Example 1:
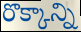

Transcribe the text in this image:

రొక్కాన్ని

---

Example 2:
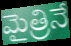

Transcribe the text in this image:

మైత్రినే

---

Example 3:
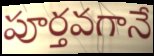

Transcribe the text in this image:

పూర్తవగానే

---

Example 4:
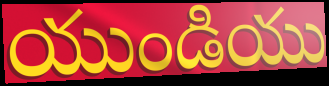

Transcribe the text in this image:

యుండియు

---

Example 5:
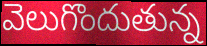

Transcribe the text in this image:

వెలుగొందుతున్న